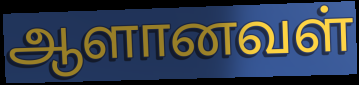
ஆளானவள்